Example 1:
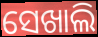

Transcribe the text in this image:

ସେଖାଲି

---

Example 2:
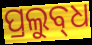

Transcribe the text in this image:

ପ୍ରଲୁବ୍‌ଧ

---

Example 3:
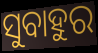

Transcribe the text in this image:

ସୁବାହୁର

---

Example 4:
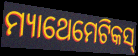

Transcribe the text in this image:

ମ୍ୟାଥେମେଟିକସ୍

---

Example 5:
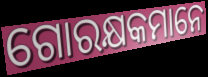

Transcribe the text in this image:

ଗୋରକ୍ଷକମାନେ